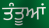
ਤੰਤੂਆਂ